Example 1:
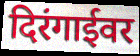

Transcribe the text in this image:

दिरंगाईवर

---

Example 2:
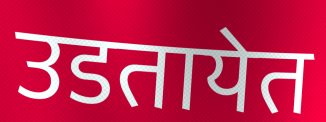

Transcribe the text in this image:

उडतायेत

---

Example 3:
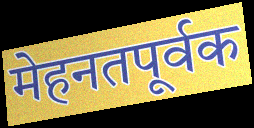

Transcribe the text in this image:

मेहनतपूर्वक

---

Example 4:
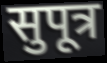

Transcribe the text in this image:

सुपूत्र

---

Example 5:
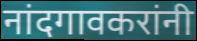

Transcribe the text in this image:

नांदगावकरांनी